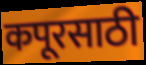
कपूरसाठी